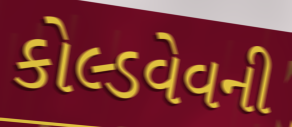
કોલ્ડવેવની